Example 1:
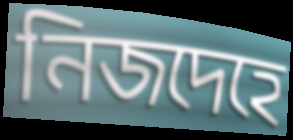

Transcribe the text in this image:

নিজদেহে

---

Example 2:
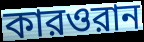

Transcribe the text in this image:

কারওরান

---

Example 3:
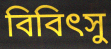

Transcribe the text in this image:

বিবিৎসু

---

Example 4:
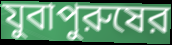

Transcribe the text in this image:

যুবাপুরুষের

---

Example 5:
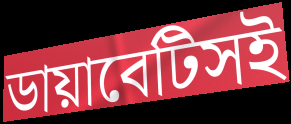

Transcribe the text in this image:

ডায়াবেটিসই